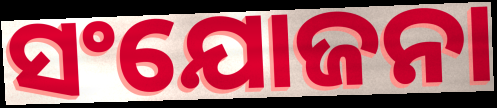
ସଂଯୋଜନା